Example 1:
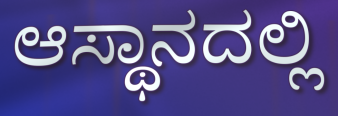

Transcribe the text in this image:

ಆಸ್ಥಾನದಲ್ಲಿ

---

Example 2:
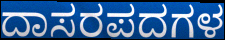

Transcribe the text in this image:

ದಾಸರಪದಗಳ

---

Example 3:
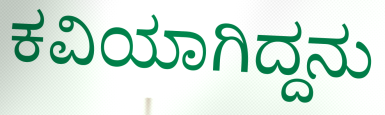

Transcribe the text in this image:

ಕವಿಯಾಗಿದ್ದನು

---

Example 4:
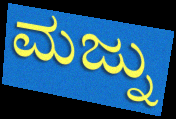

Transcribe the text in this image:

ಮಜ್ನು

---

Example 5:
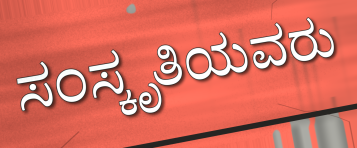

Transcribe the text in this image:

ಸಂಸ್ಕೃತಿಯವರು